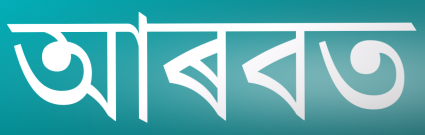
আৰবত